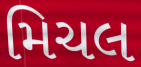
મિચલ